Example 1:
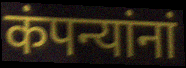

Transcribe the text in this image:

कंपन्यांनां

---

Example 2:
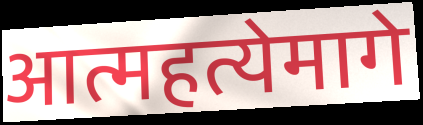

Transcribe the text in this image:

आत्महत्येमागे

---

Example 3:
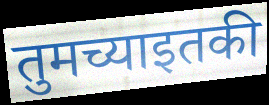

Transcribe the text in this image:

तुमच्याइतकी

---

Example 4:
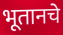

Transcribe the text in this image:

भूतानचे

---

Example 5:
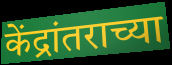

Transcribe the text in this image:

केंद्रांतराच्या